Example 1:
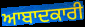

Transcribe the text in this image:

ਆਬਾਦਕਾਰੀ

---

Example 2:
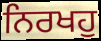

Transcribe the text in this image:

ਨਿਰਖਹੁ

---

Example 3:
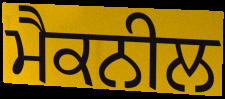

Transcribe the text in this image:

ਮੈਕਨੀਲ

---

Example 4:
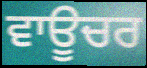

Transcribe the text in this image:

ਵਾਊਚਰ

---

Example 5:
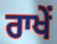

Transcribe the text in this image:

ਰਾਖੇਂ